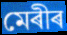
মেৰীৰ